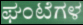
ಘಂಟೆಗಳ